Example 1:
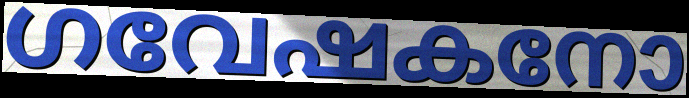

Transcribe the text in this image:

ഗവേഷകനോ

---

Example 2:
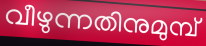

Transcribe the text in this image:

വീഴുന്നതിനുമുമ്പ്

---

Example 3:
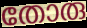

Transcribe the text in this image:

തോരു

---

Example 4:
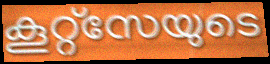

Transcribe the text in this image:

കൂറ്റ്സേയുടെ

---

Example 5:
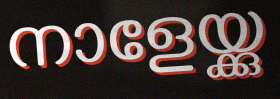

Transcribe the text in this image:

നാളേയ്ക്കു